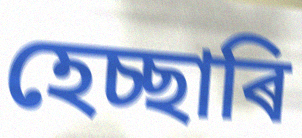
হেচ্ছাৰি